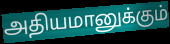
அதியமானுக்கும்